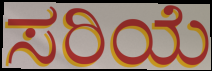
ಸರಿಯೆ